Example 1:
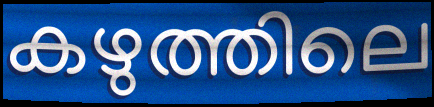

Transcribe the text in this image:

കഴുത്തിലെ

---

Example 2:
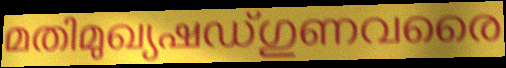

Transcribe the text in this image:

മതിമുഖ്യഷഡ്ഗുണവരൈ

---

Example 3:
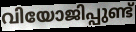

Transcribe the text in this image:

വിയോജിപ്പുണ്ട്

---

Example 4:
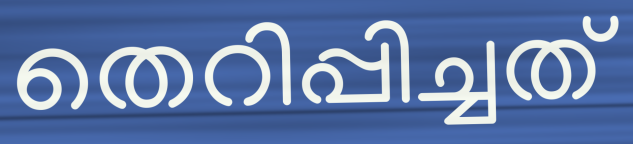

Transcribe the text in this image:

തെറിപ്പിച്ചത്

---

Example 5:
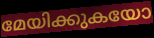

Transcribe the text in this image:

മേയിക്കുകയോ